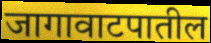
जागावाटपातील